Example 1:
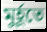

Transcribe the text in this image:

মুর্হূতে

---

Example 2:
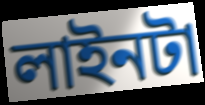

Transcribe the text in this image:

লাইনটা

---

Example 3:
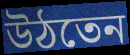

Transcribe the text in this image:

উঠতেন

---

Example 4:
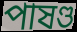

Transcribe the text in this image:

পাষণ্ড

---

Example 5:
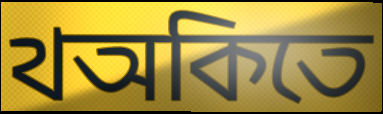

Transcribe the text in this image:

থঅকিতে